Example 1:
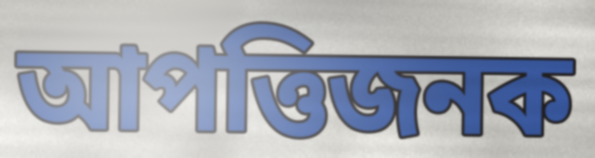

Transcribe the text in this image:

আপত্তিজনক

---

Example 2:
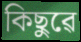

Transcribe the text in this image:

কিছুৱে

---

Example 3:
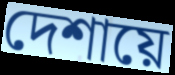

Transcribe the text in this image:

দেশায়ে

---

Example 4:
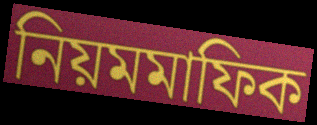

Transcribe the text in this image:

নিয়মমাফিক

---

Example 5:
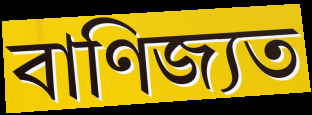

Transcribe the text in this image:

বাণিজ্যত